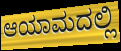
ಆಯಾಮದಲ್ಲಿ